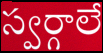
స్వర్గాలే